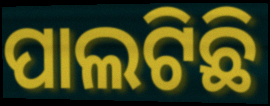
ପାଲଟିଛି